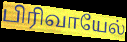
பிரிவாயேல்